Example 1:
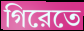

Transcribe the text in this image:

গিরেতে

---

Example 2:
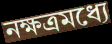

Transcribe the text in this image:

নক্ষত্রমধ্যে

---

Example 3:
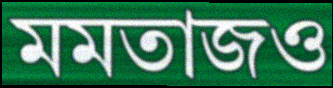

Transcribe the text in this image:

মমতাজও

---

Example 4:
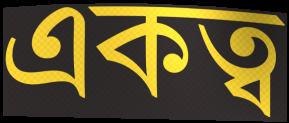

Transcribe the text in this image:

একত্ব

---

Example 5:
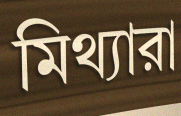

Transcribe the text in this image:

মিথ্যারা